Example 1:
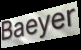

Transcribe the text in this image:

Baeyer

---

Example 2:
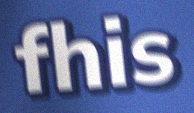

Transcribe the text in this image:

fhis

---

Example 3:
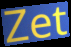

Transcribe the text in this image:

Zet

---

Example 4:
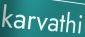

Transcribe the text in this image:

karvathi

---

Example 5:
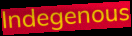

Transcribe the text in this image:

Indegenous